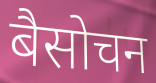
बैसोचन